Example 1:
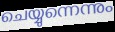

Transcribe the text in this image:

ചെയ്യുന്നെന്നും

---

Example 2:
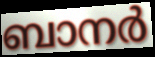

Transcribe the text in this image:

ബാനർ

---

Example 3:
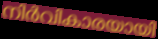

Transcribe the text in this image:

നിർവികാരയായി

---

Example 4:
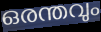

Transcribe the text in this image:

ഒരന്തവും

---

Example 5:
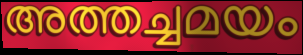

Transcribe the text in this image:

അത്തച്ചമയം